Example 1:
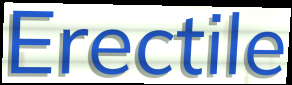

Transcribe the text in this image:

Erectile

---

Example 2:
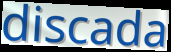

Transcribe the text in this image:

discada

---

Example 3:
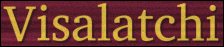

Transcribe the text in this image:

Visalatchi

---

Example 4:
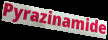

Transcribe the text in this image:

Pyrazinamide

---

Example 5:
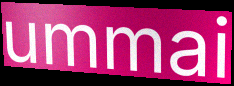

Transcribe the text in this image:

ummai